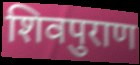
शिवपुराण